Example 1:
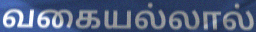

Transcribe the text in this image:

வகையல்லால்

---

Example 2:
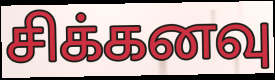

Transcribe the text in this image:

சிக்கனவு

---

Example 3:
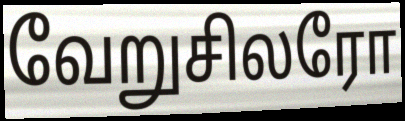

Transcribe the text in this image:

வேறுசிலரோ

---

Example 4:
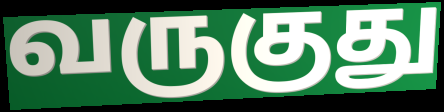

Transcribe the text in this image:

வருகுது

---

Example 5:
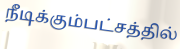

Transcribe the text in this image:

நீடிக்கும்பட்சத்தில்